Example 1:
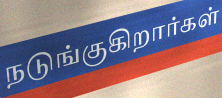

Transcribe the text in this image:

நடுங்குகிறார்கள்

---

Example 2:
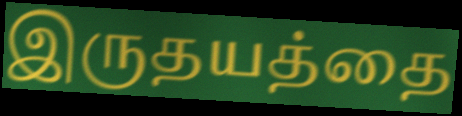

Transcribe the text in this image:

இருதயத்தை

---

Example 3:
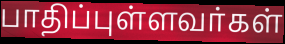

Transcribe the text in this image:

பாதிப்புள்ளவர்கள்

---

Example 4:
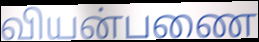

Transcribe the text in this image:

வியன்பணை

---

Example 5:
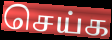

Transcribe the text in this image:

செய்க